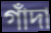
গাঁদা